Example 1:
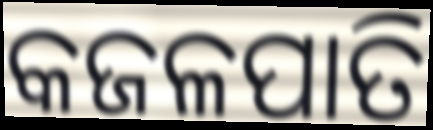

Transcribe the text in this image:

କଜଳପାତି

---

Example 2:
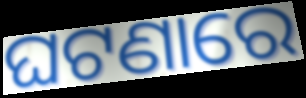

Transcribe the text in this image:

ଘଟଣାରେ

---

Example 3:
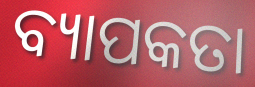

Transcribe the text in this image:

ବ୍ୟାପକତା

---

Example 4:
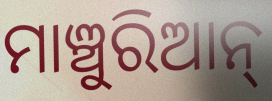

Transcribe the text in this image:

ମାଞ୍ଚୁରିଆନ୍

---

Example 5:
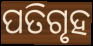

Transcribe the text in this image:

ପତିଗୃହ